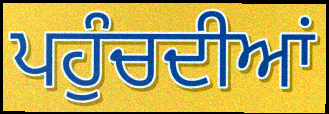
ਪਹੁੰਚਦੀਆਂ